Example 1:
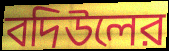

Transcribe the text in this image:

বদিউলের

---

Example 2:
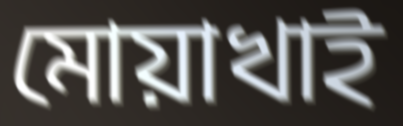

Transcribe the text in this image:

মোয়াখাই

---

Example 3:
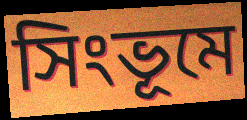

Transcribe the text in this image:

সিংভূমে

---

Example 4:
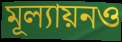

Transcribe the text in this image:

মূল্যায়নও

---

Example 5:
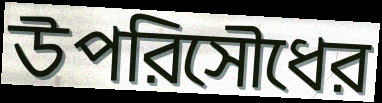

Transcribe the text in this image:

উপরিসৌধের